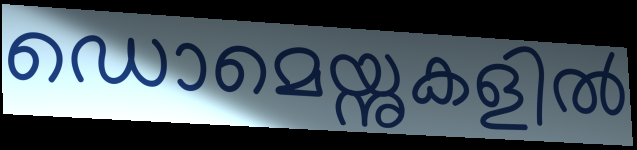
ഡൊമെയ്നുകളിൽ